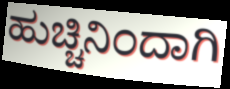
ಹುಚ್ಚಿನಿಂದಾಗಿ